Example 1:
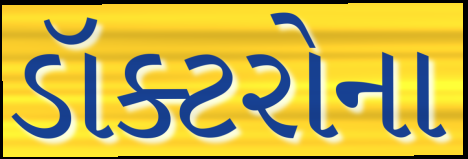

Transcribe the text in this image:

ડૉક્ટરોના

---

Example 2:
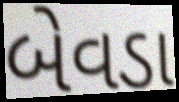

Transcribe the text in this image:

બેવડા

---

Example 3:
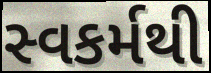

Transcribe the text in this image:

સ્વકર્મથી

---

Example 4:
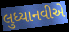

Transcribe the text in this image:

લુધ્યાનવીએ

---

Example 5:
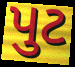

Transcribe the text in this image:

પુટ